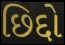
છિદ્દો